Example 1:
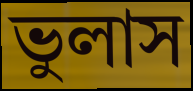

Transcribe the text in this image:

ভুলাস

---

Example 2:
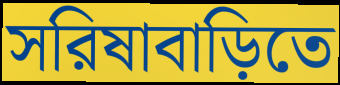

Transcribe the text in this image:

সরিষাবাড়িতে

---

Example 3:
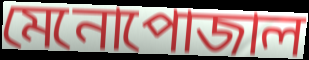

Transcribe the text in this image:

মেনোপোজাল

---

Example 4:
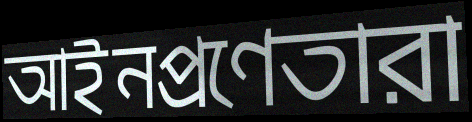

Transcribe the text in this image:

আইনপ্রণেতারা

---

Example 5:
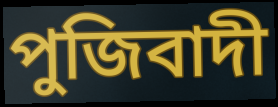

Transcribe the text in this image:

পুজিবাদী